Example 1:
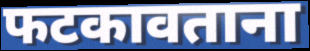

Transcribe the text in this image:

फटकावताना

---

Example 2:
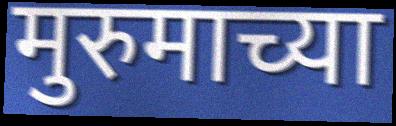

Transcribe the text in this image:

मुरुमाच्या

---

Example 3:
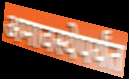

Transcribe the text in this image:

अमावस्येपर्यंत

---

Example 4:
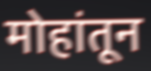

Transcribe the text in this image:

मोहांतून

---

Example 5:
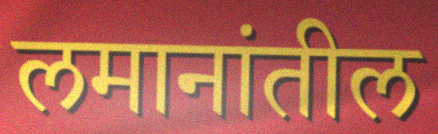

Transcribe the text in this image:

लमानांतील